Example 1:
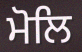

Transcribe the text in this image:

ਮੋਲਿ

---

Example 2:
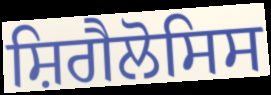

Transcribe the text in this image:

ਸ਼ਿਗੈਲੋਸਿਸ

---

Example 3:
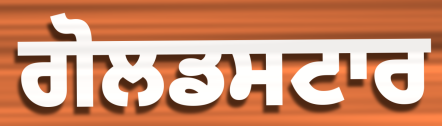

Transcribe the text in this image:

ਗੋਲਡਸਟਾਰ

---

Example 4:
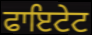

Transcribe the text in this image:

ਫਾਇਟੇਟ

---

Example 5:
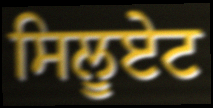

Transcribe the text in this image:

ਸਿਲੂਏਟ